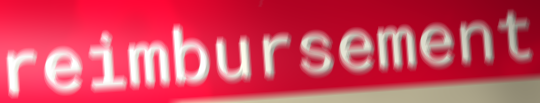
reimbursement